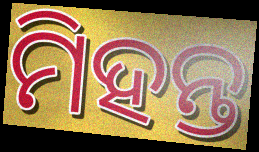
ମିହନ୍ତ